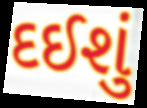
દઈશું